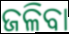
ଜଳିବା